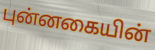
புன்னகையின்